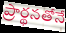
ప్రార్థనతోనే